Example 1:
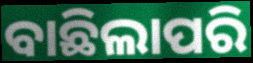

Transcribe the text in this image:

ବାଛିଲାପରି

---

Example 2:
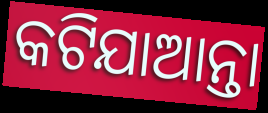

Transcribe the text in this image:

କଟିଯାଆନ୍ତା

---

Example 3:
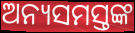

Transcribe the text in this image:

ଅନ୍ୟସମସ୍ତଙ୍କ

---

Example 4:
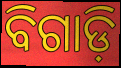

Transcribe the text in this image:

ବିଗାଡ଼ି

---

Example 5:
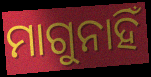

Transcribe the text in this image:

ମାଗୁନାହିଁ